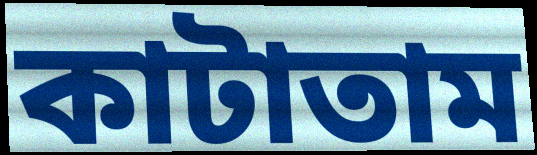
কাটাতাম